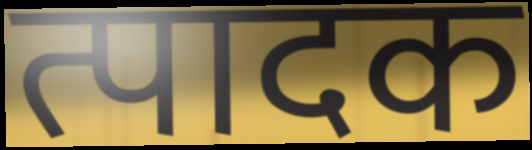
त्पादक